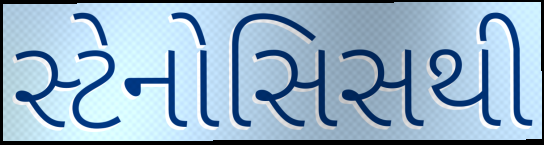
સ્ટેનોસિસથી